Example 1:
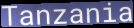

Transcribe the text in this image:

Tanzania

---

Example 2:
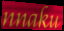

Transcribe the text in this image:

nnaku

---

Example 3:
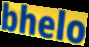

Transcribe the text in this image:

bhelo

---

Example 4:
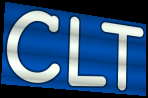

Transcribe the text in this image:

CLT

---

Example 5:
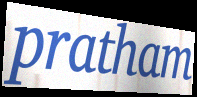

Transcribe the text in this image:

pratham